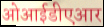
ओआईडीएआर